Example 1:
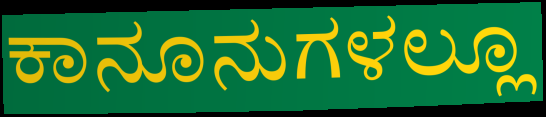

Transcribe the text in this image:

ಕಾನೂನುಗಳಲ್ಲೂ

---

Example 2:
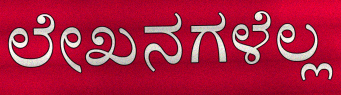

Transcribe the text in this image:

ಲೇಖನಗಳೆಲ್ಲ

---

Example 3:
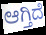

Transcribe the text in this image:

ಆಗ್ತಿದೆ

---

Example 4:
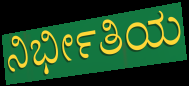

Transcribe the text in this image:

ನಿರ್ಭೀತಿಯ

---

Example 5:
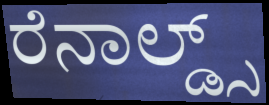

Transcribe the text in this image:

ರೆನಾಲ್ಡ್ಸ್